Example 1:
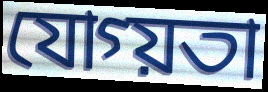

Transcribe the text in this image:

যোগ্য়তা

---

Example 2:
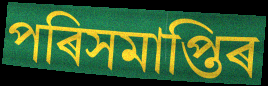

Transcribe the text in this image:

পৰিসমাপ্তিৰ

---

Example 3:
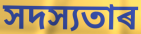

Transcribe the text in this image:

সদস্যতাৰ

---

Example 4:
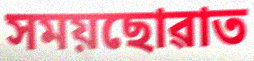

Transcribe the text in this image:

সময়ছোৱাত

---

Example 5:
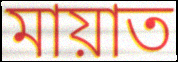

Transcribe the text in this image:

মায়াত